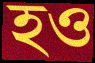
হও